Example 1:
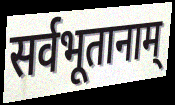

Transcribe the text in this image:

सर्वभूतानाम्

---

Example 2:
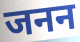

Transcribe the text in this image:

जनन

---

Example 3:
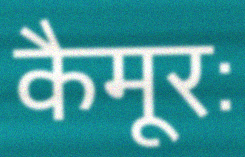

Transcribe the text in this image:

कैमूरः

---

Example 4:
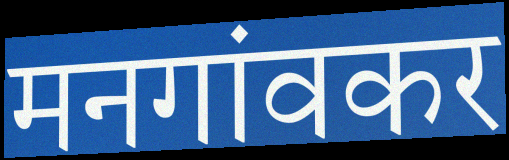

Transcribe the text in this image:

मनगांवकर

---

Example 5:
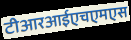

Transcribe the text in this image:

टीआरआईएचएमएस